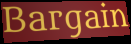
Bargain